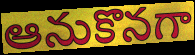
ఆనుకొనగా